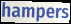
hampers